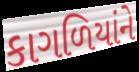
કાગળિયાંને